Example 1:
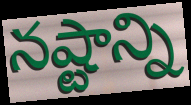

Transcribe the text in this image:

నష్టాన్ని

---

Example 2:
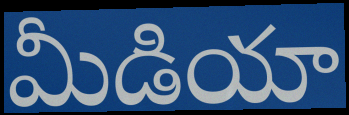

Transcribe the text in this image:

మీడియా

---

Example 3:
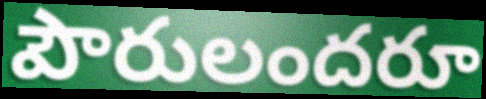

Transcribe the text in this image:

పౌరులందరూ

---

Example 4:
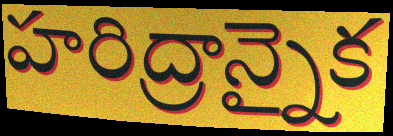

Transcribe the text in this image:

హరిద్రాన్నైక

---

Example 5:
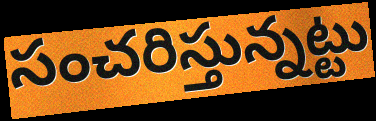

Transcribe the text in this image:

సంచరిస్తున్నట్టు